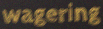
wagering